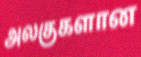
அலகுகளான